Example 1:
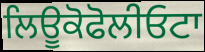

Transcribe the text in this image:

ਲਿਊਕੋਫੋਲੀਓਟਾ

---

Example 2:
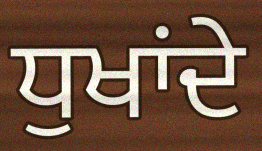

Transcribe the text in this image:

ਧੁਖਾਂਦੇ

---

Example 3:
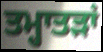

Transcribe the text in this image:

ਤਮ੍ਹਾਤੜਾਂ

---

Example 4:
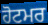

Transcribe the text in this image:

ਹੋਟਮਰ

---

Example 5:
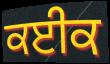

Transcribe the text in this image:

ਕਈਕ